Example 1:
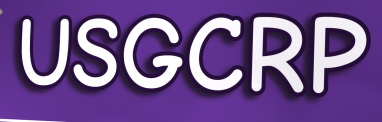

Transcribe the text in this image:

USGCRP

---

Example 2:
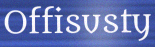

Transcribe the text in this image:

Offisusty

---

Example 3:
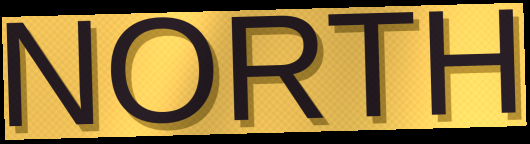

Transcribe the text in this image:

NORTH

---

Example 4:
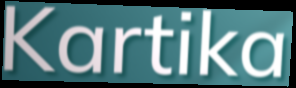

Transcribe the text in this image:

Kartika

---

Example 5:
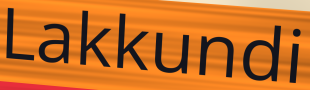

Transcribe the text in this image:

Lakkundi